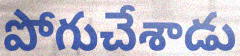
పోగుచేశాడు